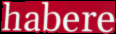
habere